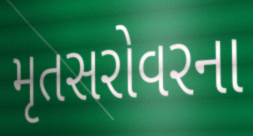
મૃતસરોવરના